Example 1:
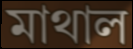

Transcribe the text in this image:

মাথাল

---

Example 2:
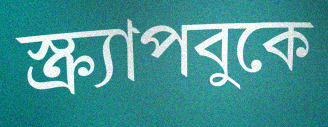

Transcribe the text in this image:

স্ক্র্যাপবুকে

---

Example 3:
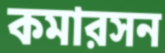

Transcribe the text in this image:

কমারসন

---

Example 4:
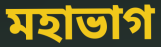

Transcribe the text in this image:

মহাভাগ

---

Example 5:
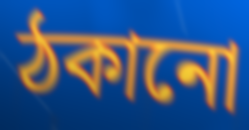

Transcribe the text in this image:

ঠকানো